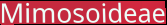
Mimosoideae